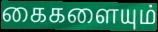
கைகளையும்